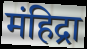
मंहिद्रा